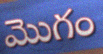
మొగం